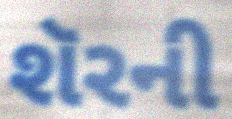
શૅરની